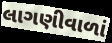
લાગણીવાળાં